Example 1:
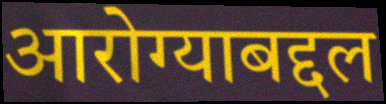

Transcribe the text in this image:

आरोग्याबद्दल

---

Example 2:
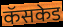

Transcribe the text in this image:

कॅसकेड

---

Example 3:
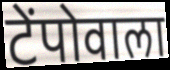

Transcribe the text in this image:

टेंपोवाला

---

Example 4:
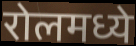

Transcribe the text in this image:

रोलमध्ये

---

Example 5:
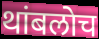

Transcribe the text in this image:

थांबलोच